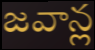
జవాన్ల